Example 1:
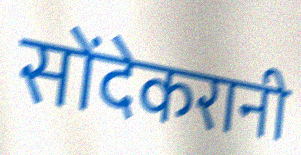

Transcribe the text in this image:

सोंदेकरानी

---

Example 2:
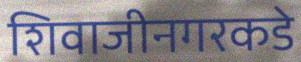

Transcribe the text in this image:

शिवाजीनगरकडे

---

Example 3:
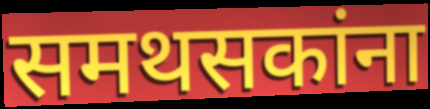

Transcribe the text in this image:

समथसकांना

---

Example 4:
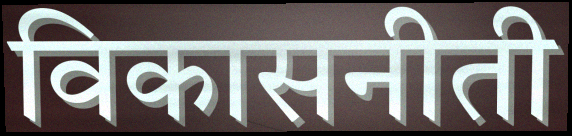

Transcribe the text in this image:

विकासनीती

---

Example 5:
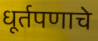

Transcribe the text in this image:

धूर्तपणाचे